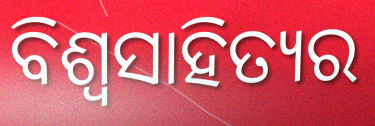
ବିଶ୍ୱସାହିତ୍ୟର